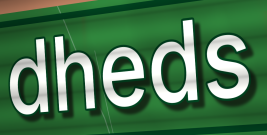
dheds